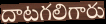
దాటగలిగారు